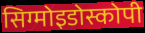
सिग्मोइडोस्कोपी